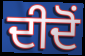
ਦੀਦੋਂ